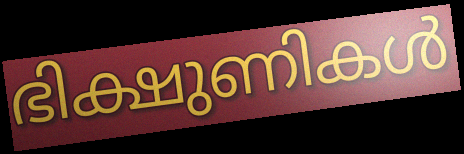
ഭിക്ഷുണികൾ